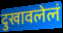
दुखावलेलं